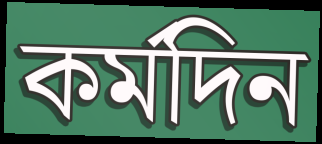
কৰ্মদিন